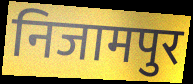
निजामपुर